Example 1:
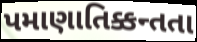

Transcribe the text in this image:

પમાણાતિક્કન્તતા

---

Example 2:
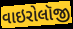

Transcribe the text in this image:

વાઇરોલૉજી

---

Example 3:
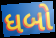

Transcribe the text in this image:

ધબો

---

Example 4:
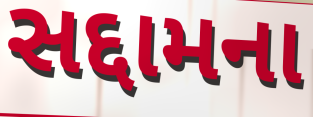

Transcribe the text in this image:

સદ્દામના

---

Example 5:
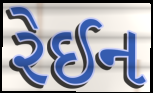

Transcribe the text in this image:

રેઈન